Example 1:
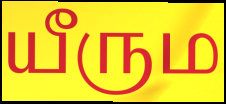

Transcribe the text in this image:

யீரும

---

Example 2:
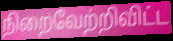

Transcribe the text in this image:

நிறைவேற்றிவிட்ட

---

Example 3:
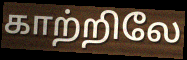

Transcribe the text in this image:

காற்றிலே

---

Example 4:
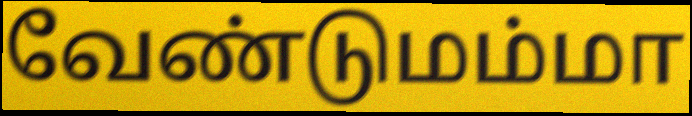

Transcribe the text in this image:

வேண்டுமம்மா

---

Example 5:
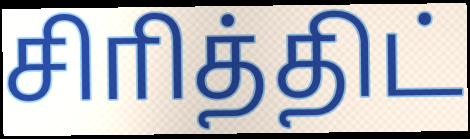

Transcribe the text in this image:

சிரித்திட்